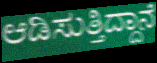
ಆಡಿಸುತ್ತಿದ್ದಾನೆ